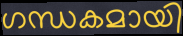
ഗന്ധകമായി